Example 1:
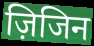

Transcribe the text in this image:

ज़िजिन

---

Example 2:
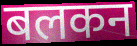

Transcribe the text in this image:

बलकन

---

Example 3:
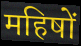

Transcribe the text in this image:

महिषों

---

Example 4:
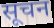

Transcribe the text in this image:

सूचन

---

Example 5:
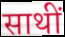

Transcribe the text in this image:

साथीं